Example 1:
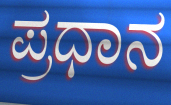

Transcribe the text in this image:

ಪ್ರಧಾನ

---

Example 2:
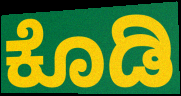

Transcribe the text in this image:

ಕೊಡಿ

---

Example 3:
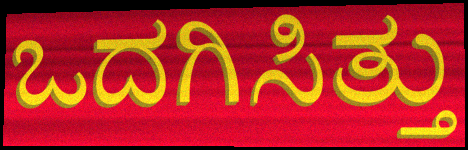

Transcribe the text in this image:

ಒದಗಿಸಿತ್ತು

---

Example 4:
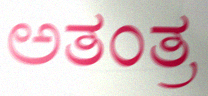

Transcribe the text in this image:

ಅತಂತ್ರ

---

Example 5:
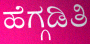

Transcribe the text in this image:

ಹೆಗ್ಗಡಿತಿ